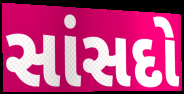
સાંસદો